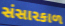
સંસારકાળ